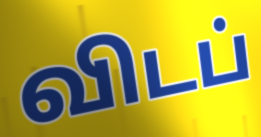
விடப்